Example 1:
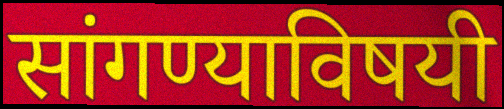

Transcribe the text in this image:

सांगण्याविषयी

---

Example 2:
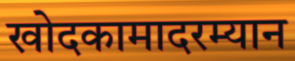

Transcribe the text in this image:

खोदकामादरम्यान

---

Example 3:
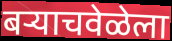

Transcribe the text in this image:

बर्‍याचवेळेला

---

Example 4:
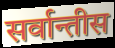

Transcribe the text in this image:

सर्वान्तीस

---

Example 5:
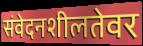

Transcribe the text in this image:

संवेदनशीलतेवर